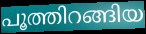
പൂത്തിറങ്ങിയ